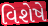
વિશેષે